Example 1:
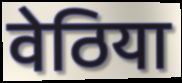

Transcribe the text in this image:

वेठिया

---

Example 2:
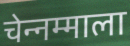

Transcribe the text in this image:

चेन्नम्माला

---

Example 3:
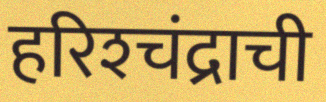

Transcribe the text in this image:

हरिश्‍चंद्राची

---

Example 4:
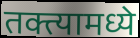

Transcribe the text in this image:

तक्त्यामध्ये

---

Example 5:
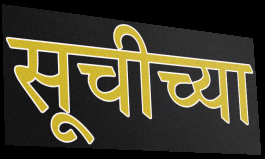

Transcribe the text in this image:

सूचीच्या